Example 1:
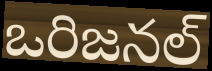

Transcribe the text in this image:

ఒరిజనల్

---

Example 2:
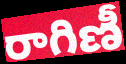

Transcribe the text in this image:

రాగిణీ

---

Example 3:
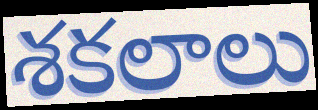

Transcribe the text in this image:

శకలాలు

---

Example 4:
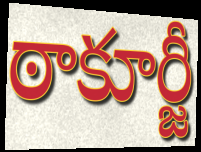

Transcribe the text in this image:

ఠాకూర్జీ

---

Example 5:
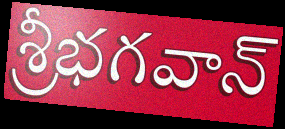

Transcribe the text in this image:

శ్రీభగవాన్